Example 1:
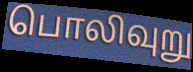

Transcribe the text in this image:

பொலிவுறு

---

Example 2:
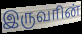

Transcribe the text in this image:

இருவரின்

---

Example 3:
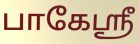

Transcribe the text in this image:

பாகேஸ்ரீ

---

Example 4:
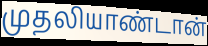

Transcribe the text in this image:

முதலியாண்டான்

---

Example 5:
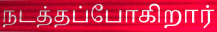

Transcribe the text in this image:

நடத்தப்போகிறார்